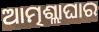
ଆତ୍ମଶ୍ଲାଘାର